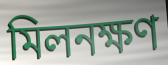
মিলনক্ষণ